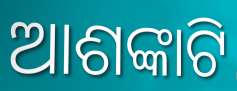
ଆଶଙ୍କାଟି